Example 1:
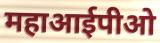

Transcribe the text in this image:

महाआईपीओ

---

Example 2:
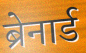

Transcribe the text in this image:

ब्रेनार्ड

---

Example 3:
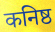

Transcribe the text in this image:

कनिष्ठ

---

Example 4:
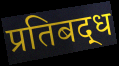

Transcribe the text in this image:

प्रतिबद्ध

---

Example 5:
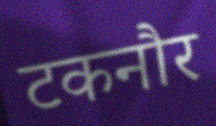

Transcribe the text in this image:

टकनौर